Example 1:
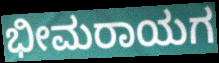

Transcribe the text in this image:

ಭೀಮರಾಯಗ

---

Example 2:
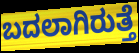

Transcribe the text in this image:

ಬದಲಾಗಿರುತ್ತೆ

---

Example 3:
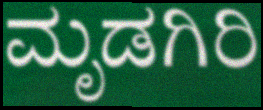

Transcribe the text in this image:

ಮೃಡಗಿರಿ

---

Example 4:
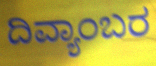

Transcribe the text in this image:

ದಿವ್ಯಾಂಬರ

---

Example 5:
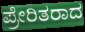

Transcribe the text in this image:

ಪ್ರೇರಿತರಾದ